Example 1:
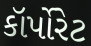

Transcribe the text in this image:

કૉર્પોરેટ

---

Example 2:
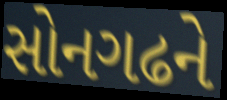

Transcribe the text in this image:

સોનગઢને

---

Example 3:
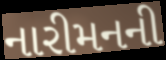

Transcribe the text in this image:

નારીમનની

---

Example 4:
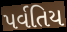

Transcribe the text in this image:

પર્વતિય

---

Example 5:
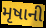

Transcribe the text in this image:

મૃષાની